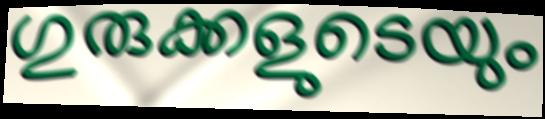
ഗുരുക്കളുടെയും